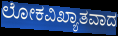
ಲೋಕವಿಖ್ಯಾತವಾದ